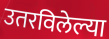
उतरविलेल्या